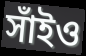
সাঁইও